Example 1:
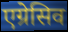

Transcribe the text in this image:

एग्रेसिव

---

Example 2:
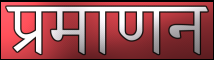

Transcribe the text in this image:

प्रमाणन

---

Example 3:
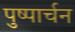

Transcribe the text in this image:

पुष्पार्चन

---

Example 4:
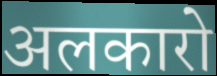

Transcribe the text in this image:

अलकारो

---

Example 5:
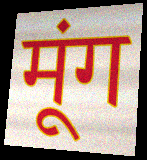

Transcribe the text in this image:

मूंग